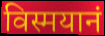
विस्मयानं